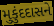
મુકુંદદાસને